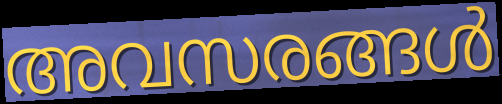
അവസരങ്ങൾ